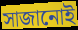
সাজানোই